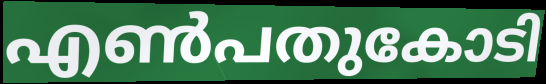
എൺപതുകോടി